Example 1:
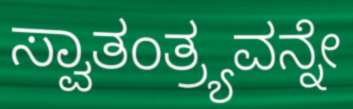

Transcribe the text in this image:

ಸ್ವಾತಂತ್ರ್ಯವನ್ನೇ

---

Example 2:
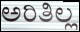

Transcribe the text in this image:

ಅರಿತಿಲ್ಲ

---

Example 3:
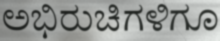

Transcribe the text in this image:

ಅಭಿರುಚಿಗಳಿಗೂ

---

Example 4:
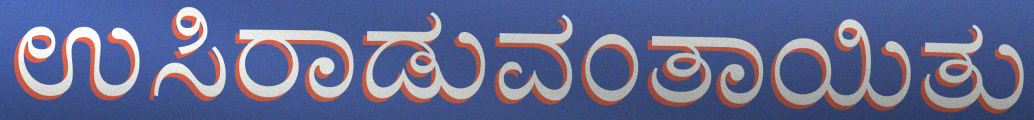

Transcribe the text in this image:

ಉಸಿರಾಡುವಂತಾಯಿತು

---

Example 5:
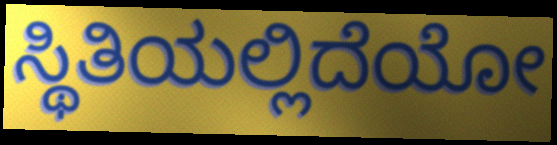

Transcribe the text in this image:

ಸ್ಥಿತಿಯಲ್ಲಿದೆಯೋ